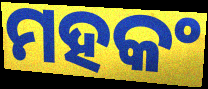
ମହକଂ